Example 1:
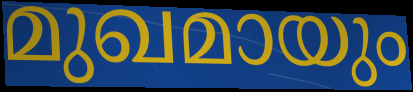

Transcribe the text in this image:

മുഖമായും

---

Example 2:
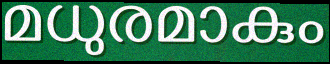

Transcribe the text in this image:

മധുരമാകും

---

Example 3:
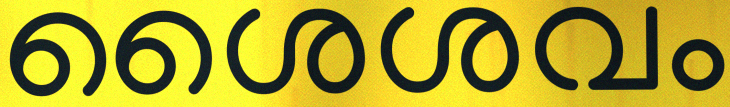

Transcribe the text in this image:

ശൈശവം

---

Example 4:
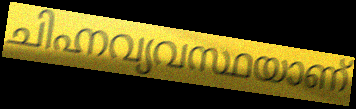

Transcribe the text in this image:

ചിഹ്നവ്യവസ്ഥയാണ്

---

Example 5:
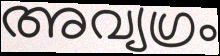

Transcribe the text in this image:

അവ്യഗ്രം